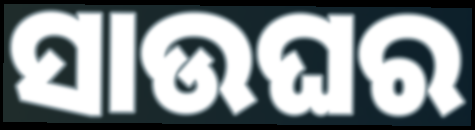
ସାଉଘର